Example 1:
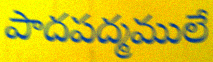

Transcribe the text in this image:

పాదపద్మములే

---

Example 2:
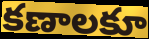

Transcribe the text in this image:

కణాలకూ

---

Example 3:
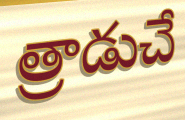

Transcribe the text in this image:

త్రాడుచే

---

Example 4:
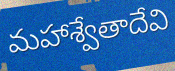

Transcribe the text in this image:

మహాశ్వేతాదేవి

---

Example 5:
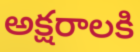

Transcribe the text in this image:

అక్షరాలకి